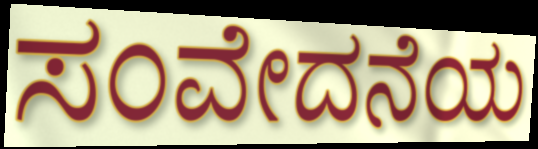
ಸಂವೇದನೆಯ